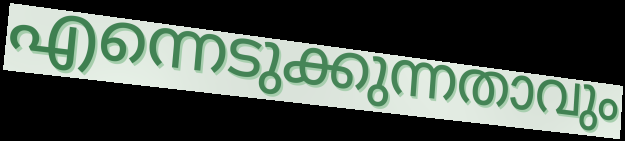
എന്നെടുക്കുന്നതാവും